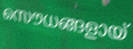
സൌധങ്ങളായ്